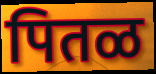
पितळ